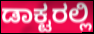
ಡಾಕ್ಟರಲ್ಲಿ